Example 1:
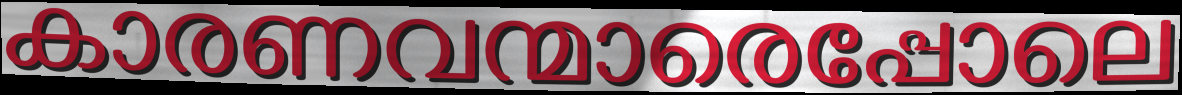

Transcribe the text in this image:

കാരണവന്മാരെപ്പോലെ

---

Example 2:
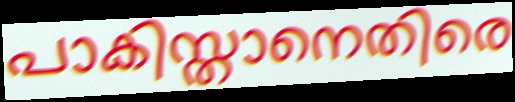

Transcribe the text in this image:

പാകിസ്താനെതിരെ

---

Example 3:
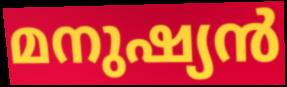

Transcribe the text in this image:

മനുഷ്യൻ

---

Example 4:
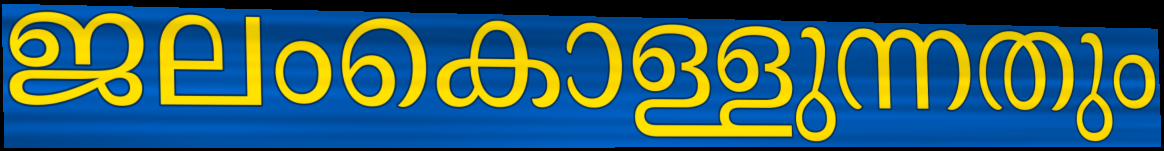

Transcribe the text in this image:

ജലംകൊള്ളുന്നതും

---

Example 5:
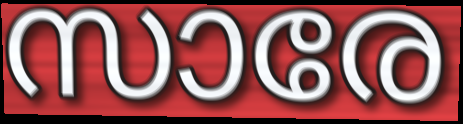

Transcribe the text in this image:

സാരേ